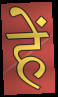
हें